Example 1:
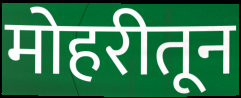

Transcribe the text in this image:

मोहरीतून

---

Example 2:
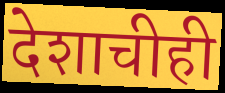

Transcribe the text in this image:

देशाचीही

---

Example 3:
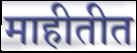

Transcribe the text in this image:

माहीतीत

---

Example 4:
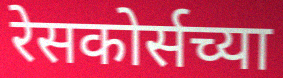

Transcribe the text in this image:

रेसकोर्सच्या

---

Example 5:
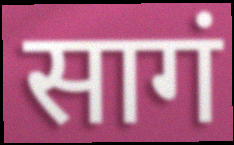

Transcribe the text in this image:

सागं